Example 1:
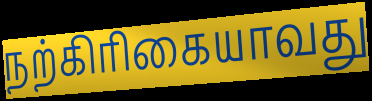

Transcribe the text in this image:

நற்கிரிகையாவது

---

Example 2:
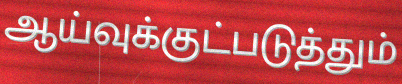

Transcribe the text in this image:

ஆய்வுக்குட்படுத்தும்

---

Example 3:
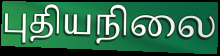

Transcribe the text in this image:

புதியநிலை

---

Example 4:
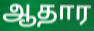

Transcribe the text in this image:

ஆதார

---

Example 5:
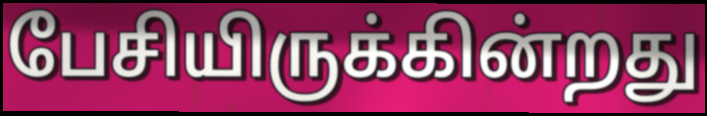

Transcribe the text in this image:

பேசியிருக்கின்றது